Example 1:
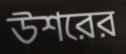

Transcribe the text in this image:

উশরের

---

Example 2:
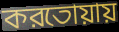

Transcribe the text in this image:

করতোয়ায়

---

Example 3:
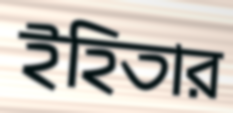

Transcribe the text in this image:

ইহিতার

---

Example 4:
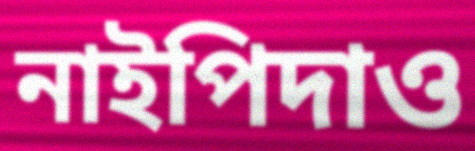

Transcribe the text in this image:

নাইপিদাও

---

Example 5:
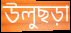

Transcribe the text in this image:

উলুছড়া